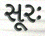
સૂરઃ